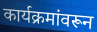
कार्यक्रमांवरून